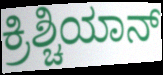
ಕ್ರಿಶ್ಚಿಯಾನ್